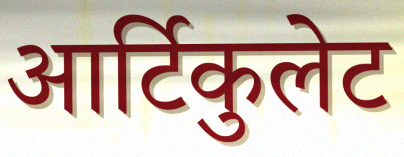
आर्टिकुलेट